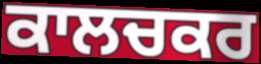
ਕਾਲਚਕਰ